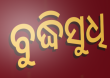
ବୁଦ୍ଧିସୁଧି